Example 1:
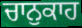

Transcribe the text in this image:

ਚਾਨੁਕਾਹ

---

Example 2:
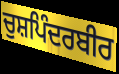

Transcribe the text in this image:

ਚੁਸ਼ਪਿੰਦਰਬੀਰ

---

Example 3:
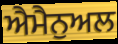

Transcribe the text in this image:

ਐਮੈਨੁਅਲ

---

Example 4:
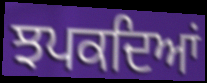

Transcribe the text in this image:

ਝਪਕਦਿਆਂ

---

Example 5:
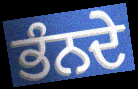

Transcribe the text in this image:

ਭੰਨਦੇ